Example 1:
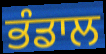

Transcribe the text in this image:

ਭੰਡਾਲ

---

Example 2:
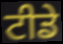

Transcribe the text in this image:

ਟੀਡੇ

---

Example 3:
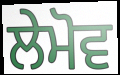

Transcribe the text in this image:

ਲੇਮੋਵ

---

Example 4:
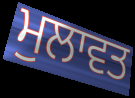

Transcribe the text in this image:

ਮੁਲਾਵਤ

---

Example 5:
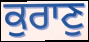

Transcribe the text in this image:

ਕੁਰਾਣੁ